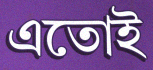
এতোই